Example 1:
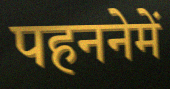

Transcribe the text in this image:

पहननेमें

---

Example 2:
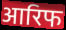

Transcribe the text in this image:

आरिफ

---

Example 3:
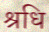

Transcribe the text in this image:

श्रधि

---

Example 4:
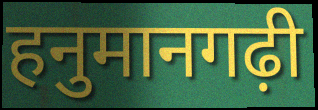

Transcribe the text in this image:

हनुमानगढ़ी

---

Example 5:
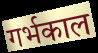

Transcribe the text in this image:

गर्भकाल